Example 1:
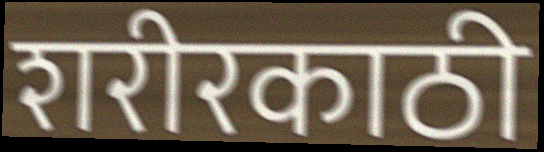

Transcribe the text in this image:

शरीरकाठी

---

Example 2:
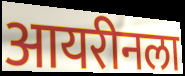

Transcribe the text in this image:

आयरीनला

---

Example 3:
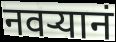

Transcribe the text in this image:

नवर्‍यानं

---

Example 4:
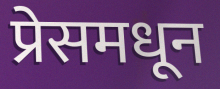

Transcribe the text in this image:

प्रेसमधून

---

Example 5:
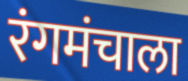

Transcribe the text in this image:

रंगमंचाला